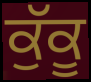
ਕੁੱਕੂ